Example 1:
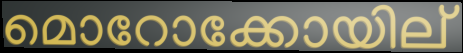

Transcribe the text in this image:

മൊറോക്കോയില്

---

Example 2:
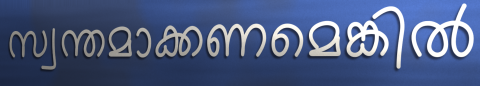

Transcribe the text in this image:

സ്വന്തമാക്കണമെങ്കിൽ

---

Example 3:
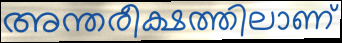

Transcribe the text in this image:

അന്തരീക്ഷത്തിലാണ്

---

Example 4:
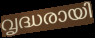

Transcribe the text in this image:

വൃദ്ധരായി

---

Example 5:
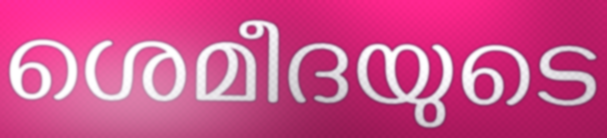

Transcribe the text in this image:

ശെമീദയുടെ